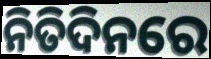
ନିତିଦିନରେ